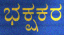
ಭಕ್ಷಕರ